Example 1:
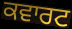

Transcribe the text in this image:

ਕਵਾਰਟ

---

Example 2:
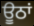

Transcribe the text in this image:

ਊਠਾਂ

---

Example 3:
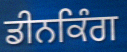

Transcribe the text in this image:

ਡੀਨਕਿੰਗ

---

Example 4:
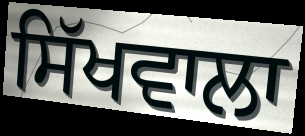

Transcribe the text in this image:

ਸਿੱਖਵਾਲਾ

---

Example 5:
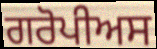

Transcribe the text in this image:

ਗਰੋਪੀਅਸ